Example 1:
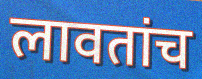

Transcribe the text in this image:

लावतांच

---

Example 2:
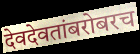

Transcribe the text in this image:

देवदेवतांबरोबरच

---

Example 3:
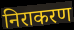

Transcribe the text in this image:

निराकरण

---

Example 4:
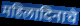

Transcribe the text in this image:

महिलादिनाचे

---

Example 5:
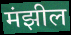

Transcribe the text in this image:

मंझील